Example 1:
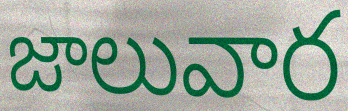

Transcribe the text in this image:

జాలువార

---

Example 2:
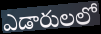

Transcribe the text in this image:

ఎడారులలో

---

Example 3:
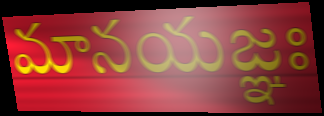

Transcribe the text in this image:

మానయజ్ఞః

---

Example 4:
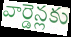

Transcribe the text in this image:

వార్డెన్లకు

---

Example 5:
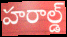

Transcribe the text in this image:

హరాల్డ్